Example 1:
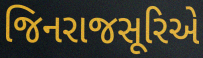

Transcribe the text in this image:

જિનરાજસૂરિએ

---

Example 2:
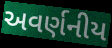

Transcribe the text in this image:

અવર્ણનીય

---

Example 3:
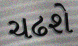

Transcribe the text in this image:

ચઢશે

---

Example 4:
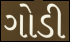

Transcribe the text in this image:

ગોડી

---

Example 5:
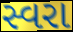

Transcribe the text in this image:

સ્વરા